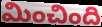
మించింది